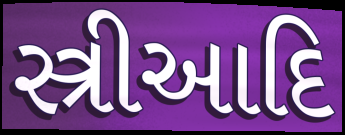
સ્ત્રીઆદિ